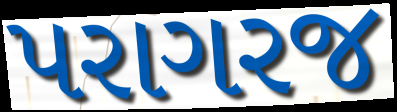
પરાગરજ